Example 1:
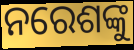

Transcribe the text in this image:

ନରେଶଙ୍କୁ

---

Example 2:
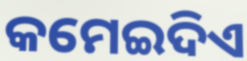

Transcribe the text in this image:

କମେଇଦିଏ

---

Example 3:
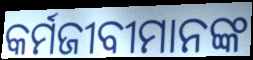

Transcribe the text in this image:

କର୍ମଜୀବୀମାନଙ୍କ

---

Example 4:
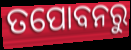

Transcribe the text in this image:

ତପୋବନରୁ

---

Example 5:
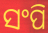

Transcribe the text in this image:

ସଂପି